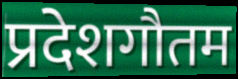
प्रदेशगौतम